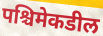
पश्चिमेकडील